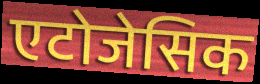
एटोजेसिक